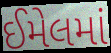
ઈમેલમાં